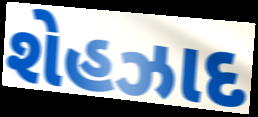
શેહઝાદ